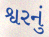
શ્વરનું